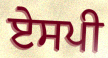
ਏਸਪੀ